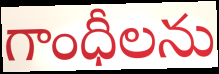
గాంధీలను